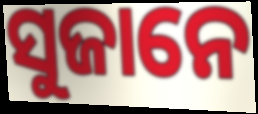
ସୁଜାନେ